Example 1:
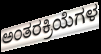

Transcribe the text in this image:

ಅಂತರಕ್ರಿಯೆಗಳ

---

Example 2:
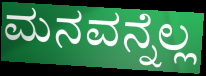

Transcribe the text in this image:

ಮನವನ್ನೆಲ್ಲ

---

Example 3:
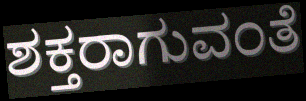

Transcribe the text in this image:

ಶಕ್ತರಾಗುವಂತೆ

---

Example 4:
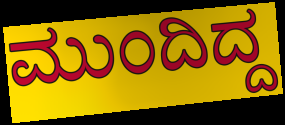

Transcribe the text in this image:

ಮುಂದಿದ್ದ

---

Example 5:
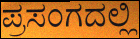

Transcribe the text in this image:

ಪ್ರಸಂಗದಲ್ಲಿ